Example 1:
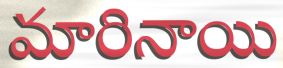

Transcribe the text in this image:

మారినాయి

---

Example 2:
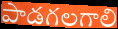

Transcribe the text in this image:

పాడగలగాలి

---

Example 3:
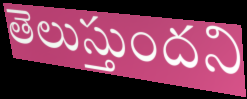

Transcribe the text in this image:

తెలుస్తుందని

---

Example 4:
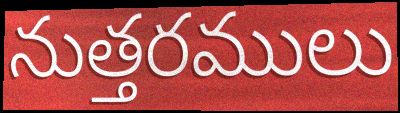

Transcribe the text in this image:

నుత్తరములు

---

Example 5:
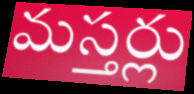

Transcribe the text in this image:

మస్తర్లు